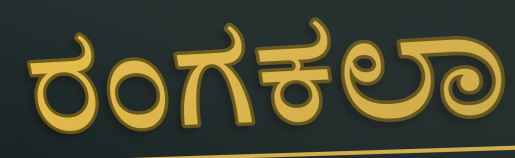
ರಂಗಕಲಾ